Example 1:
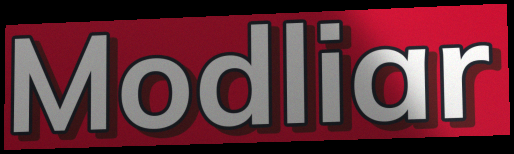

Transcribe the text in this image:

Modliar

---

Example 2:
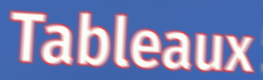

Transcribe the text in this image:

Tableaux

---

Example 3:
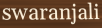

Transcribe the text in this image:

swaranjali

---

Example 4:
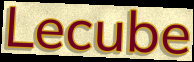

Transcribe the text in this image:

Lecube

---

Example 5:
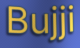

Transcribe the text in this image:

Bujji